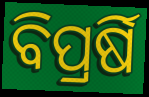
ବିପ୍ରର୍ଷି